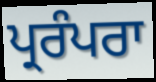
ਪ੍ਰਰੰਪਰਾ